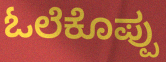
ಓಲೆಕೊಪ್ಪು